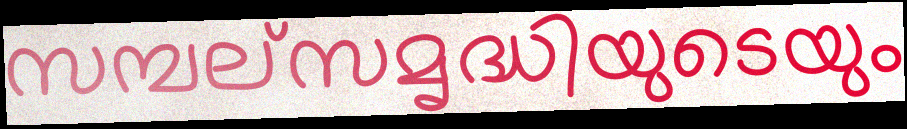
സമ്പല്സമൃദ്ധിയുടെയും